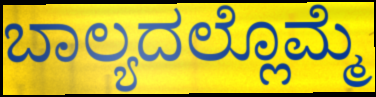
ಬಾಲ್ಯದಲ್ಲೊಮ್ಮೆ